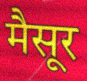
मैसूर